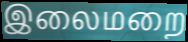
இலைமறை